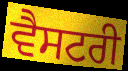
ਵੈਸਟਰੀ